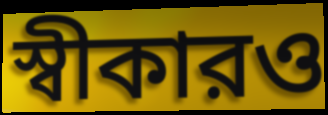
স্বীকারও